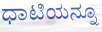
ಧಾಟಿಯನ್ನೂ